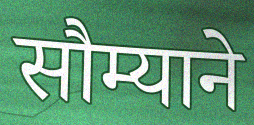
सौम्याने